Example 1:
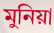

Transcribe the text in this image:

মুনিয়া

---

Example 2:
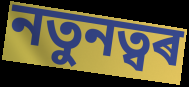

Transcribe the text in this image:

নতুনত্বৰ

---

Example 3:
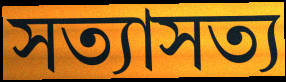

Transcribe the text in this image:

সত্যাসত্য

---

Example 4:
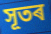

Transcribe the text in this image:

সূতৰ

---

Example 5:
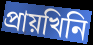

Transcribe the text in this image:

প্ৰায়খিনি